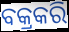
ବକ୍ରକରି